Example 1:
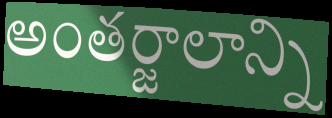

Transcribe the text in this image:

అంతర్జాలాన్ని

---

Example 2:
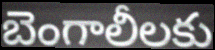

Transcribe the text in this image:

బెంగాలీలకు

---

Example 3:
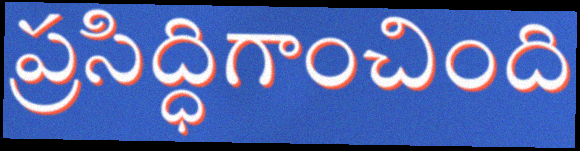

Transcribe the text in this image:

ప్రసిద్ధిగాంచింది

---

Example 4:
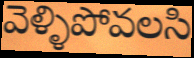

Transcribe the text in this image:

వెళ్ళిపోవలసి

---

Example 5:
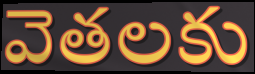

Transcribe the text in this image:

వెతలకు